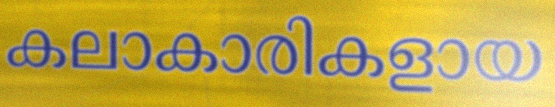
കലാകാരികളായ